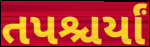
તપશ્ચર્યાં